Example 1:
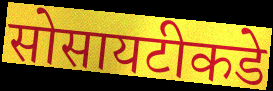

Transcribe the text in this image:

सोसायटीकडे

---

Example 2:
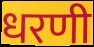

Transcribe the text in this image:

धरणी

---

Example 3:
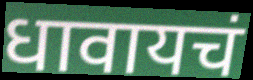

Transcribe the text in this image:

धावायचं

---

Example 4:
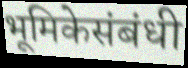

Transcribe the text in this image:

भूमिकेसंबंधी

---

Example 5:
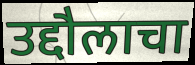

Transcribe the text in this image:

उद्दौलाचा